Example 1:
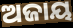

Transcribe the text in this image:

ଅଜାୟ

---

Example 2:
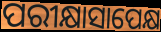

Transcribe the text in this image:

ପରୀକ୍ଷାସାପେକ୍ଷ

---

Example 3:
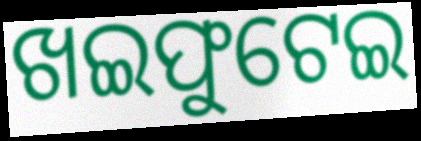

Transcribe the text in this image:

ଖଇଫୁଟେଇ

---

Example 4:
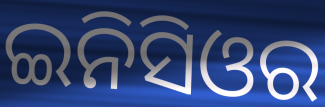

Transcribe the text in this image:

ଇନିସିଓର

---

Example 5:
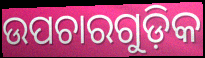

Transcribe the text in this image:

ଉପଚାରଗୁଡ଼ିକ